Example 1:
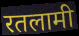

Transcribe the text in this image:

रतलामी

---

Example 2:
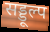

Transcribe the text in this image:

सड्डूल्प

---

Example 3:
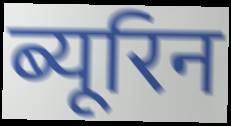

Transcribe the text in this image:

ब्यूरिन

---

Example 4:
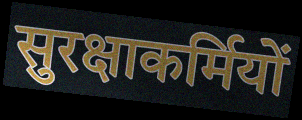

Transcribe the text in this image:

सुरक्षाकर्मियों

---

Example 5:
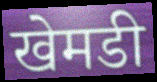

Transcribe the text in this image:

खेमडी